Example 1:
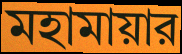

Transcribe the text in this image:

মহামায়ার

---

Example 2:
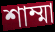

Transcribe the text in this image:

শাম্মা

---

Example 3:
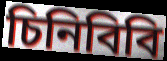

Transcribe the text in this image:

চিনিবিবি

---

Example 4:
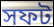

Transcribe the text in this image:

সফট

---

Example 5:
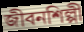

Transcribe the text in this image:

জীবনশিল্পী